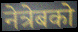
नेत्रेबको